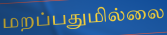
மறப்பதுமில்லை